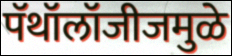
पॅथॉलॉजीजमुळे